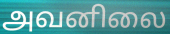
அவனிலை